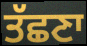
ਤੱਛਣਾ